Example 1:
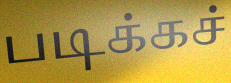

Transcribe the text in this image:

படிக்கச்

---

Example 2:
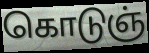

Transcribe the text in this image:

கொடுஞ்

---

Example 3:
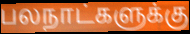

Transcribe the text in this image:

பலநாட்களுக்கு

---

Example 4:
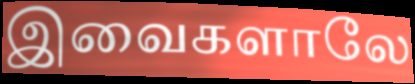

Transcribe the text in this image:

இவைகளாலே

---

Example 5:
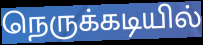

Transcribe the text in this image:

நெருக்கடியில்